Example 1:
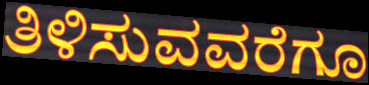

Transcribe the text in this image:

ತಿಳಿಸುವವರೆಗೂ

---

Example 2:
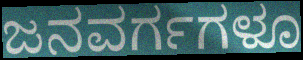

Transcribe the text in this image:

ಜನವರ್ಗಗಳೂ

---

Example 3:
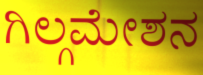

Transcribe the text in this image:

ಗಿಲ್ಗಮೇಶನ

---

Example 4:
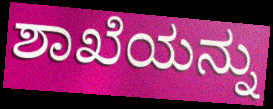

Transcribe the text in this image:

ಶಾಖೆಯನ್ನು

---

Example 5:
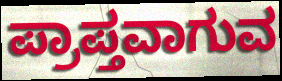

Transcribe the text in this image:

ಪ್ರಾಪ್ತವಾಗುವ